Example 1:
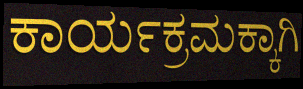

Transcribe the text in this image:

ಕಾರ್ಯಕ್ರಮಕ್ಕಾಗಿ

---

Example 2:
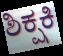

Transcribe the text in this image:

ಶಿಕ್ಷಕಿ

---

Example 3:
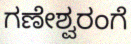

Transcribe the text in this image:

ಗಣೇಶ್ವರಂಗೆ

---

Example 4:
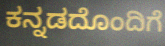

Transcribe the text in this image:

ಕನ್ನಡದೊಂದಿಗೆ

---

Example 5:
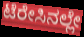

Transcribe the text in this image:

ಟೆರೇಸಿನಲ್ಲೇ